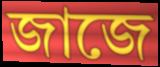
জাজে